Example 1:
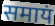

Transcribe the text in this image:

समायं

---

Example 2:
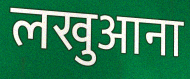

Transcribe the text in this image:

लखुआना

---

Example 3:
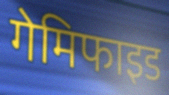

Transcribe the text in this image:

गेमिफाइड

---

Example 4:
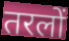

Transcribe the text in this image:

तरलों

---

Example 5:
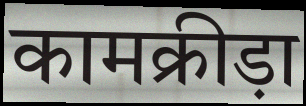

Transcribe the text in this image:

कामक्रीड़ा